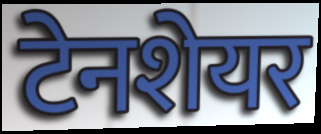
टेनशेयर